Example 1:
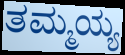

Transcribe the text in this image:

ತಮ್ಮಯ್ಯ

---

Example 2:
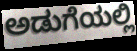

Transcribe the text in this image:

ಅಡುಗೆಯಲ್ಲಿ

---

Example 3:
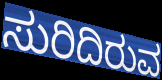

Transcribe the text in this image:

ಸುರಿದಿರುವ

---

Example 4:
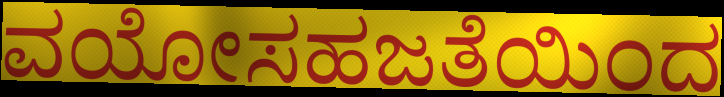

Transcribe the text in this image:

ವಯೋಸಹಜತೆಯಿಂದ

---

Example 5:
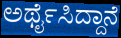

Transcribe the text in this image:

ಅರ್ಥೈಸಿದ್ದಾನೆ